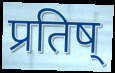
प्रतिष्